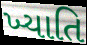
ખ્યાતિ